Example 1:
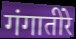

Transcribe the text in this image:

गंगातीरे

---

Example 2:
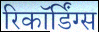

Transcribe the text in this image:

रिकॉर्डिंग्स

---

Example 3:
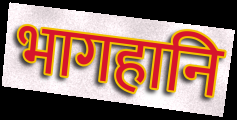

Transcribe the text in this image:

भागहानि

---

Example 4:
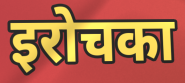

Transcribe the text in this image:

इरोचका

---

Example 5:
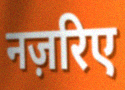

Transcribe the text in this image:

नज़रिए